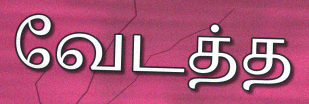
வேடத்த